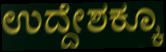
ಉದ್ದೇಶಕ್ಕೂ